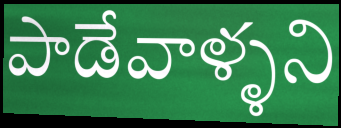
పాడేవాళ్ళని